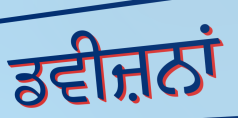
ਡਵੀਜ਼ਨਾਂ